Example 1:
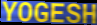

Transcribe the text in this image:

YOGESH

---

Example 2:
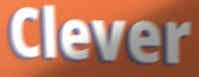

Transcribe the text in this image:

Clever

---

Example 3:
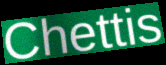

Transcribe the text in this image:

Chettis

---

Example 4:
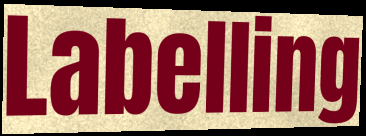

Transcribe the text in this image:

Labelling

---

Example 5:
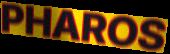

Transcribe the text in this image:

PHAROS